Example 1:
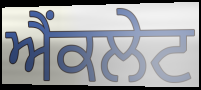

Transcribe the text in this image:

ਐਂਕਲੇਟ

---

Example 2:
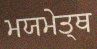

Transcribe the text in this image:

ਮਯਮੇਤ੍ਥ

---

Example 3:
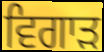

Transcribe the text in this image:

ਵਿਗਾਡ਼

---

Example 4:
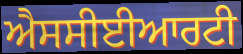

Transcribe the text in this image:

ਐਸਸੀਈਆਰਟੀ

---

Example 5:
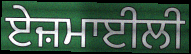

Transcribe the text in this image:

ਏਜ਼ਮਾਈਲੀ